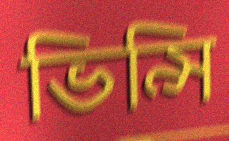
ভিন্সি